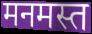
मनमस्त